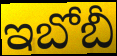
ఇబోబీ